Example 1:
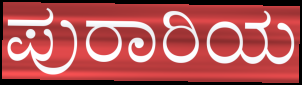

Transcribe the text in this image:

ಪುರಾರಿಯ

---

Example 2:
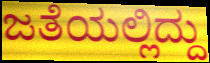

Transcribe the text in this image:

ಜತೆಯಲ್ಲಿದ್ದು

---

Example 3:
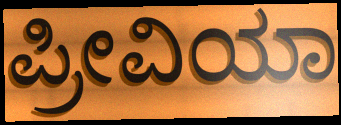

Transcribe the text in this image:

ಪ್ರೀವಿಯಾ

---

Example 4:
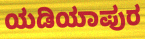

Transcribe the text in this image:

ಯಡಿಯಾಪುರ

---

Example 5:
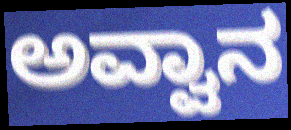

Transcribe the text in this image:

ಅವ್ವಾನ